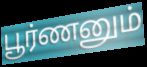
பூர்ணனும்